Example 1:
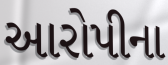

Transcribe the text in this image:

આરોપીના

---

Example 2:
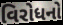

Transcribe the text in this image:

વિરોધનો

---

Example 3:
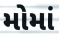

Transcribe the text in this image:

મોમાં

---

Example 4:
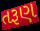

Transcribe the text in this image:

તરૂણ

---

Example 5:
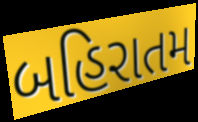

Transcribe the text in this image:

બહિરાતમ